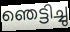
ഞെട്ടിച്ചു